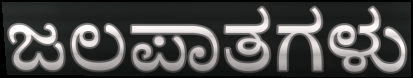
ಜಲಪಾತಗಳು